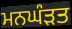
ਮਨਘੰੜਤ